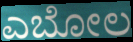
ಎಬೋಲ